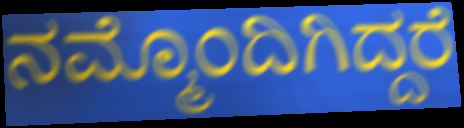
ನಮ್ಮೊಂದಿಗಿದ್ದರೆ